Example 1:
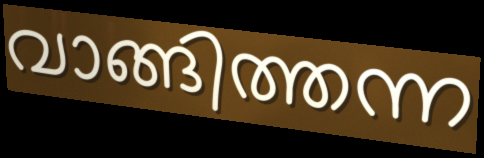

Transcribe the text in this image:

വാങ്ങിത്തന്ന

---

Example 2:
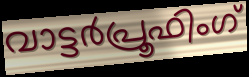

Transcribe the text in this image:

വാട്ടർപ്രൂഫിംഗ്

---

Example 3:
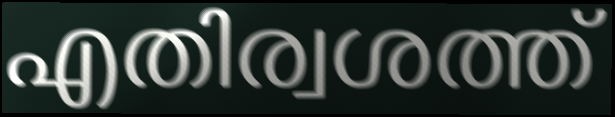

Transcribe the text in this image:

എതിര്വശത്ത്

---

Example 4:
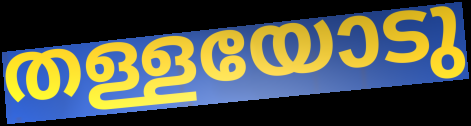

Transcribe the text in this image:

തള്ളയോടു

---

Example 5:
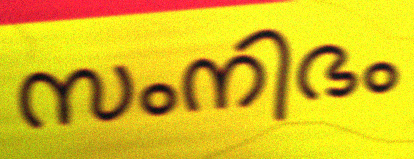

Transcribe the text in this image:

സംനിഭം